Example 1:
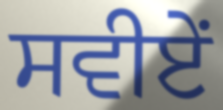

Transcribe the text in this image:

ਸਵੀਏਂ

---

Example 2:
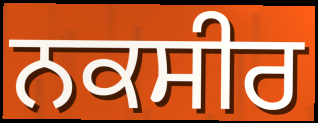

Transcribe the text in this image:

ਨਕਸੀਰ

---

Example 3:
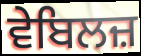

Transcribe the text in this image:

ਵੇਬਿਲਜ਼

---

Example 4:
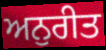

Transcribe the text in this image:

ਅਨੁਰੀਤ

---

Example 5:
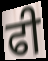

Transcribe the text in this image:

ਫੀ